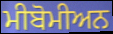
ਮੀਬੋਮੀਅਨ